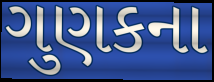
ગુણકના